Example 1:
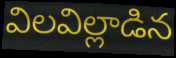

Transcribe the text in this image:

విలవిల్లాడిన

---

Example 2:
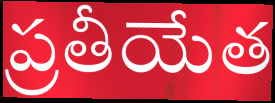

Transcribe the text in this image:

ప్రతీయేత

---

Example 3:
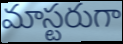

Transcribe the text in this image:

మాస్టరుగా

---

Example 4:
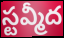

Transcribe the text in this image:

స్టవ్మీద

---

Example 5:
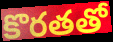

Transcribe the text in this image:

కొరతతో